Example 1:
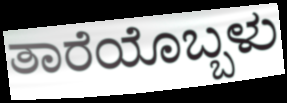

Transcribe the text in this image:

ತಾರೆಯೊಬ್ಬಳು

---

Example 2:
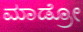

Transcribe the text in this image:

ಮಾಡ್ರೋ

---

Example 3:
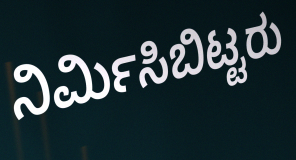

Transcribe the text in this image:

ನಿರ್ಮಿಸಿಬಿಟ್ಟರು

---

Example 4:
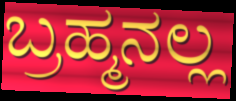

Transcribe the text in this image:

ಬ್ರಹ್ಮನಲ್ಲ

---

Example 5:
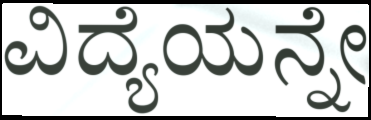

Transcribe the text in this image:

ವಿದ್ಯೆಯನ್ನೇ